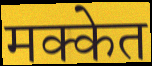
मक्केत